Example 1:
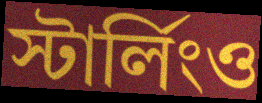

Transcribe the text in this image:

স্টার্লিংও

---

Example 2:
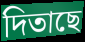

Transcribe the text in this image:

দিতাছে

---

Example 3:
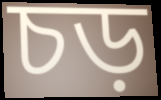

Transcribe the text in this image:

চড়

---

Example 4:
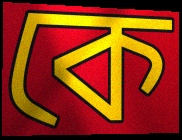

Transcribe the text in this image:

কে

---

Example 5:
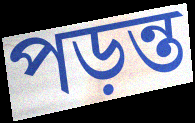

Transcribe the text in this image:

পড়ন্ত